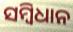
ସମ୍ୱିଧାନ